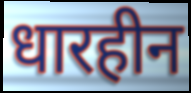
धारहीन